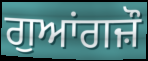
ਗੁਆਂਗਜ਼ੌ